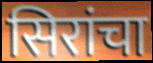
सिरांचा